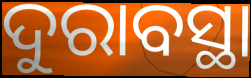
ଦୁରାବସ୍ଥା